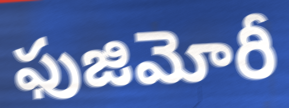
ఫుజిమోరీ